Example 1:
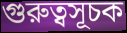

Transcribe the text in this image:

গুরুত্বসূচক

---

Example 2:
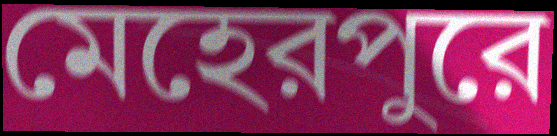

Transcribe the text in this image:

মেহেরপুরে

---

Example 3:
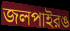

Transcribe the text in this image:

জলপাইরঙ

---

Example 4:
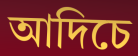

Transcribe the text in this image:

আদিচে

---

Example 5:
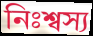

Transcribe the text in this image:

নিঃশ্বস্য